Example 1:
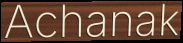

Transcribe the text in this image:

Achanak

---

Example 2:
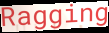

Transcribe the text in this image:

Ragging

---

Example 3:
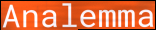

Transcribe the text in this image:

Analemma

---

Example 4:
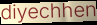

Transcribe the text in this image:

diyechhen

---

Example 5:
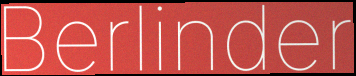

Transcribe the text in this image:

Berlinder